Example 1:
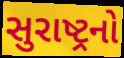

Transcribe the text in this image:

સુરાષ્ટ્રનો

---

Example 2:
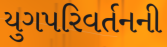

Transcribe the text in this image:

યુગપરિવર્તનની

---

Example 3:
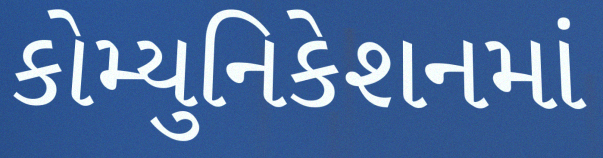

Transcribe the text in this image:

કોમ્યુનિકેશનમાં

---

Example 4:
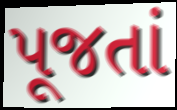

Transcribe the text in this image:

પૂજતાં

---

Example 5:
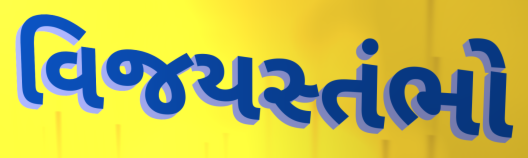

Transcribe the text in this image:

વિજયસ્તંભો